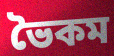
ভৈকম